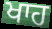
ਖਾਹ